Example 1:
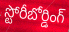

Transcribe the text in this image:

స్టోరీబోర్డింగ్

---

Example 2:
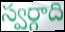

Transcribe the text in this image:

స్వర్గాది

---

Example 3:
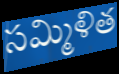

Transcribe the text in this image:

సమ్మిళిత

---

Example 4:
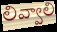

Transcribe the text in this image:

లివ్వాలి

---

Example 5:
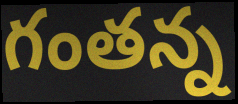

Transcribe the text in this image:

గంతన్న